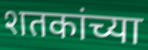
शतकांच्या